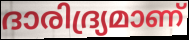
ദാരിദ്ര്യമാണ്